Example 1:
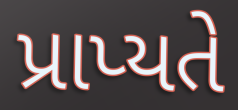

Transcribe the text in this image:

પ્રાપ્યતે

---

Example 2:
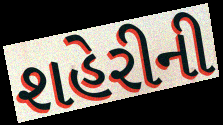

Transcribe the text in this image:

શહેરીની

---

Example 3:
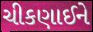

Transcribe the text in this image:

ચીકણાઈને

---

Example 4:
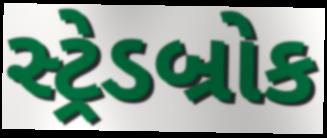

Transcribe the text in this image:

સ્ટ્રેડબ્રોક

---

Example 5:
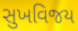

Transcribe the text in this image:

સુખવિજય